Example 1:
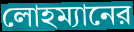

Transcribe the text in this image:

লোহম্যানের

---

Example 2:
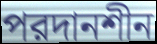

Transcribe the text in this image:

পরদানশীন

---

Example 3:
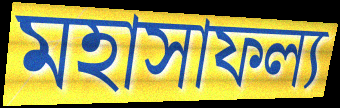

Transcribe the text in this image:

মহাসাফল্য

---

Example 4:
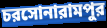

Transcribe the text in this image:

চরসোনারামপুর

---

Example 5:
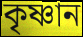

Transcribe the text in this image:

কৃষ্ণান